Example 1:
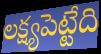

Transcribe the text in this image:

లక్ష్యపెట్టేది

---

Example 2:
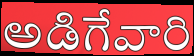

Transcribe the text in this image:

అడిగేవారి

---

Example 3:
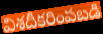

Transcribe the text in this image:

విశదీకరింపబడి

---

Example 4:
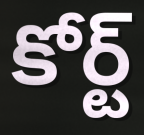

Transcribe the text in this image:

కోర్ట్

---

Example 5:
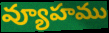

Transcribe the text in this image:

వ్యూహము